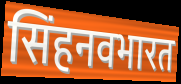
सिंहनवभारत